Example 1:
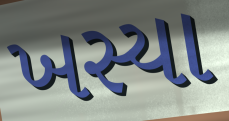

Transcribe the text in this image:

ખસ્યા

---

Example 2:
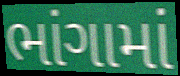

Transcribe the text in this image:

ભાંગામાં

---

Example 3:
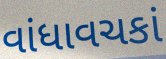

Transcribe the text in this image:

વાંધાવચકાં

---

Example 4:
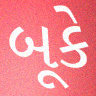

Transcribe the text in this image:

બૂકે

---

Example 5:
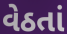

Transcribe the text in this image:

વેઠતાં